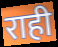
राही